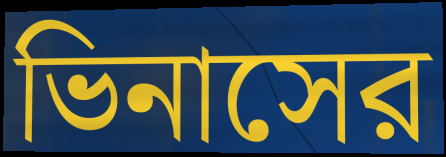
ভিনাসের